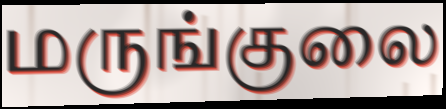
மருங்குலை